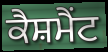
ਕੈਸ਼ਮੈਂਟ